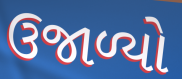
ઉજાળ્યો